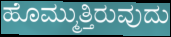
ಹೊಮ್ಮುತ್ತಿರುವುದು